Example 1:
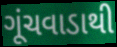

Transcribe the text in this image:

ગૂંચવાડાથી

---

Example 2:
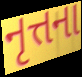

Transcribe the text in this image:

નૃત્તના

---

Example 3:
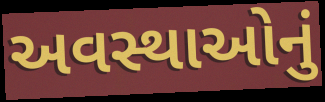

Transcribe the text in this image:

અવસ્થાઓનું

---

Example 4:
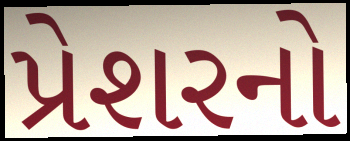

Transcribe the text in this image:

પ્રેશરનો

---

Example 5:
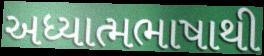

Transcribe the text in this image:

અધ્યાત્મભાષાથી